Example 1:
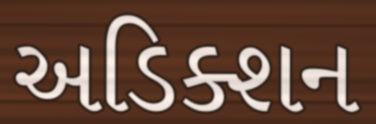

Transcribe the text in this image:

અડિક્શન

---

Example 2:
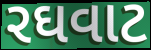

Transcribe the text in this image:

રઘવાટ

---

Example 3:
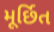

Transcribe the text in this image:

મૂર્છિત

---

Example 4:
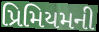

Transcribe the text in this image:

પ્રિમિયમની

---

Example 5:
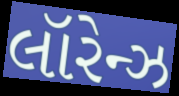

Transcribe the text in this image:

લૉરેન્ઝ